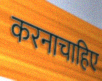
करनाचाहिए